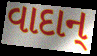
વાદાન્